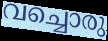
വച്ചൊരു